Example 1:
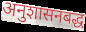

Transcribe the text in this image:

अनुशासनबद्ध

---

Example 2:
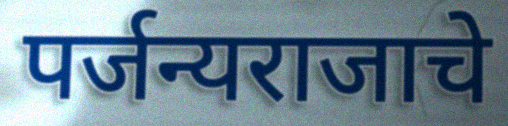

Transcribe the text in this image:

पर्जन्यराजाचे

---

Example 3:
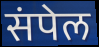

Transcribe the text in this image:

संपेल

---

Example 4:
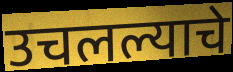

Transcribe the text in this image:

उचलल्याचे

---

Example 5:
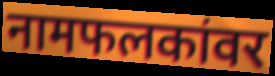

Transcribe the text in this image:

नामफलकांवर